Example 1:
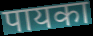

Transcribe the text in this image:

पायका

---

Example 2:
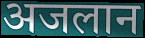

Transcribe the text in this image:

अजलान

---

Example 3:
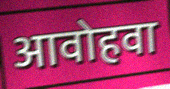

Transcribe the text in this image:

आवोहवा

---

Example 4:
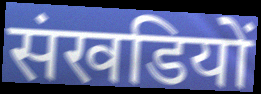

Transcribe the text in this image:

संखडियों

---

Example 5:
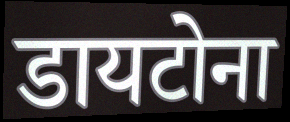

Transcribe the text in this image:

डायटोना